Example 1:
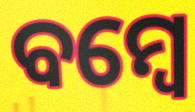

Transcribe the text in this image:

ବମ୍ୱେ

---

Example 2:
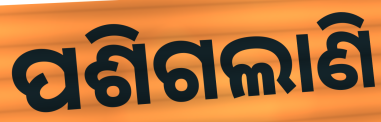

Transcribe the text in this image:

ପଶିଗଲାଣି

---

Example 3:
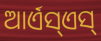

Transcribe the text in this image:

ଆର୍ଏସ୍ଏସ୍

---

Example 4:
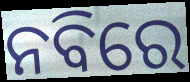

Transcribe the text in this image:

ନବିରେ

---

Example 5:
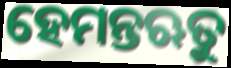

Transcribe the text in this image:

ହେମନ୍ତଋତୁ